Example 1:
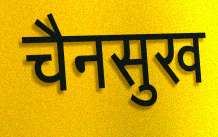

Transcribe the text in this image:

चैनसुख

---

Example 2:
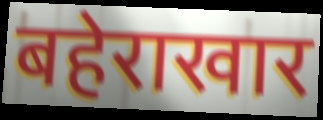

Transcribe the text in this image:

बहेराखार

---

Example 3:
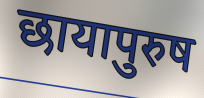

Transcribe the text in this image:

छायापुरुष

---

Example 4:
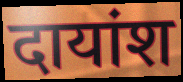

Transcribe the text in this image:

दायांश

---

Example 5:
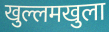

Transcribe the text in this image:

खुल्लमखुला